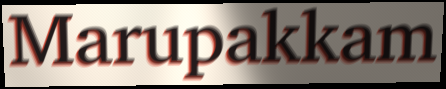
Marupakkam